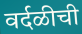
वर्दळीची